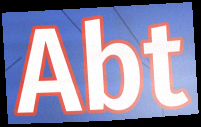
Abt